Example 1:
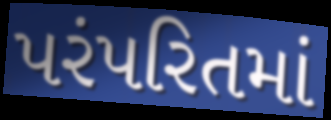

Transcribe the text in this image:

પરંપરિતમાં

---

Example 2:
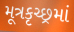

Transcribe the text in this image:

મૂત્રકૃચ્છ્રમાં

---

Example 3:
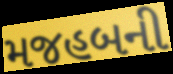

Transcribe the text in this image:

મજહબની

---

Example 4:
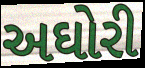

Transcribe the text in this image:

અઘોરી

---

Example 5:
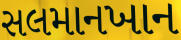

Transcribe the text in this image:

સલમાનખાન